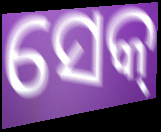
ସେକ୍